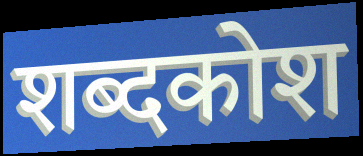
शब्दकोश